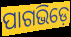
ପାଗଭିଡ଼େ